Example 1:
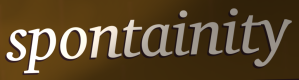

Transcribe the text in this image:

spontainity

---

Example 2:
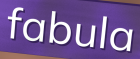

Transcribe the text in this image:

fabula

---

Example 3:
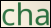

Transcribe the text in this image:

cha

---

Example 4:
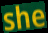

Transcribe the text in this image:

she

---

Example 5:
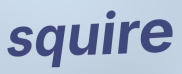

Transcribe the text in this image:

squire